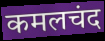
कमलचंद